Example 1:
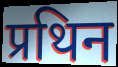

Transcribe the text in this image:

प्रथिन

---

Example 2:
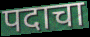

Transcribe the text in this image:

पदाचा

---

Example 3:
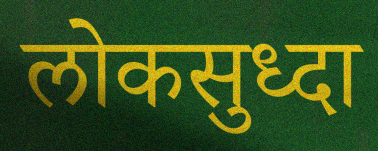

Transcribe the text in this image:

लोकसुध्दा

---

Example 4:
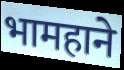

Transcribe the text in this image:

भामहाने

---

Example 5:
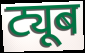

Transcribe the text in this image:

ट्यूब